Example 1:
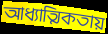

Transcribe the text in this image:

আধ্যাত্মিকতায়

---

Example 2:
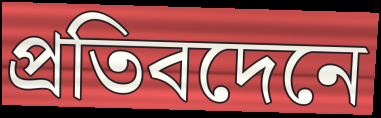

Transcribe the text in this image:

প্রতিবদেনে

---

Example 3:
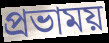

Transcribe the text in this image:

প্রভাময়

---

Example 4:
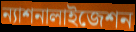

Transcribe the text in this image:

ন্যাশনালাইজেশন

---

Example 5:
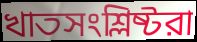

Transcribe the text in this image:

খাতসংশ্লিষ্টরা